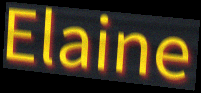
Elaine